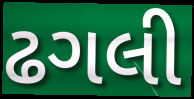
ઢગલી